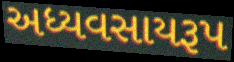
અધ્યવસાયરૂપ